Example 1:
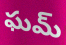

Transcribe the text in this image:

ఘమ్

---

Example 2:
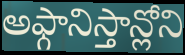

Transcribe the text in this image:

అఫ్గానిస్తాన్లోని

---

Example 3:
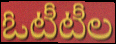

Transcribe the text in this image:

ఓటీటీల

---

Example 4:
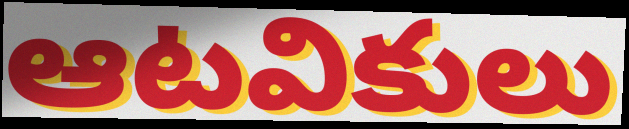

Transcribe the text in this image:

ఆటవికులు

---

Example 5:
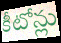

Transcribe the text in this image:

కీటోన్లు